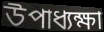
উপাধ্যক্ষা